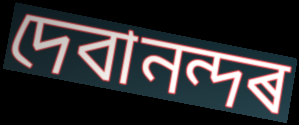
দেবানন্দৰ